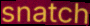
snatch